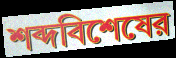
শব্দবিশেষের